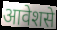
आवेशसे